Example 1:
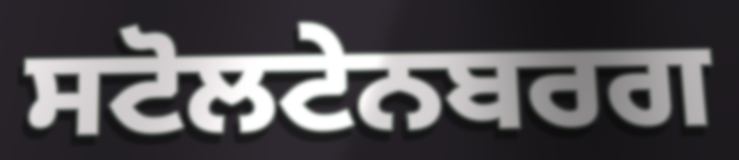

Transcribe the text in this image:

ਸਟੋਲਟੇਨਬਰਗ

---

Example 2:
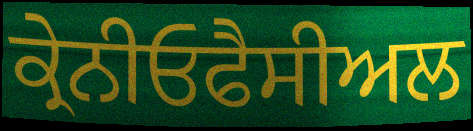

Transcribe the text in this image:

ਕ੍ਰੇਨੀਓਫੈਸੀਅਲ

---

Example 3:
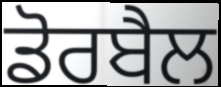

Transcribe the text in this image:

ਡੋਰਬੈਲ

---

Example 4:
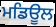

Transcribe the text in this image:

ਮਡਿਊਲ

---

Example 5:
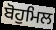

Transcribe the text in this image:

ਬੋਹੁਮਿਲ